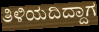
ತಿಳಿಯದಿದ್ದಾಗ